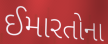
ઈમારતોના